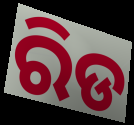
ରିଡ